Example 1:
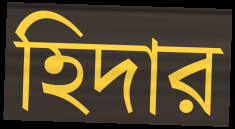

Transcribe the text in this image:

হিদার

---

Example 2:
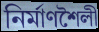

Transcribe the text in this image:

নির্মাণশৈলী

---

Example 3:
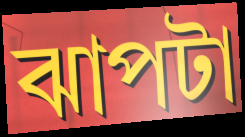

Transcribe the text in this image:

ঝাপটা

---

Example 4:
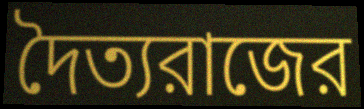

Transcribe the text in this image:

দৈত্যরাজের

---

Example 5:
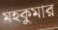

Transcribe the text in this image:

মহকুমার